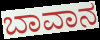
ಬಾವಾನ